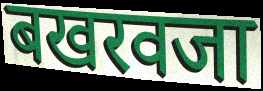
बखरवजा